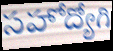
సహోద్యోగి